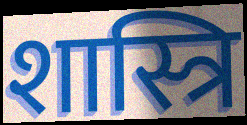
शास्त्रि